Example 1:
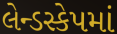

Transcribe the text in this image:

લેન્ડસ્કેપમાં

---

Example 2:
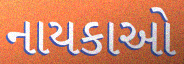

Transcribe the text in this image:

નાયકાઓ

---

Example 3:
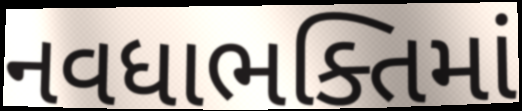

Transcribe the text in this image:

નવધાભક્તિમાં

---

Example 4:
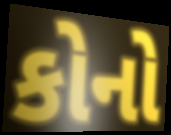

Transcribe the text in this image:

કોનો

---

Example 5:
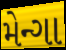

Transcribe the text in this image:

મેન્ગા